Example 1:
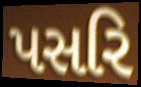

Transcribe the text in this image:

પસરિ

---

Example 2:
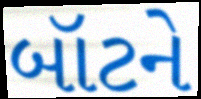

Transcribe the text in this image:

બૉટને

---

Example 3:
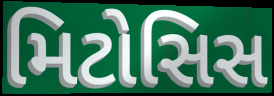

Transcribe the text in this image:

મિટોસિસ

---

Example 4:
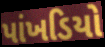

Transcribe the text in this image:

પાંખડિયો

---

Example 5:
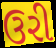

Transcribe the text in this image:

ઉરી